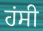
ਹਂਸੀ